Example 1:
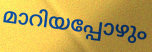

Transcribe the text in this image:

മാറിയപ്പോഴും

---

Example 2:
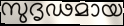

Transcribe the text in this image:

സുദൃഢമായ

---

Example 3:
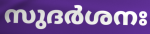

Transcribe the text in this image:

സുദർശനഃ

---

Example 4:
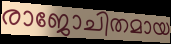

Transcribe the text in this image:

രാജോചിതമായ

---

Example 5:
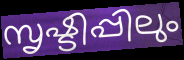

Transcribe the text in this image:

സൃഷ്ടിപ്പിലും